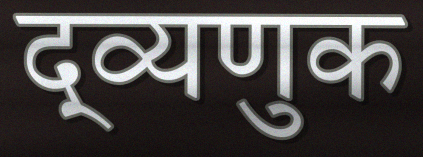
द्व्यणुक